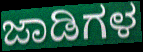
ಜಾಡಿಗಳ